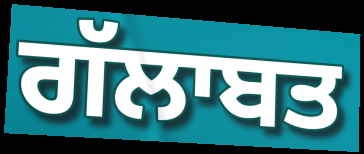
ਗੱਲਾਬਤ